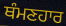
ਥੰਮਣਹਾਰ